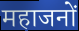
महाजनों